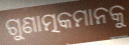
ଗୁଣାତ୍ମକମାନକୁ